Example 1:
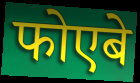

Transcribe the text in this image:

फोएबे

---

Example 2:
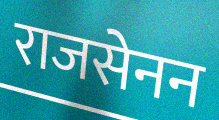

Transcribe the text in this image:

राजसेनन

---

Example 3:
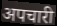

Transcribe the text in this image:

अपचारी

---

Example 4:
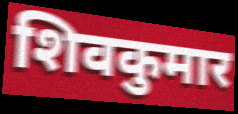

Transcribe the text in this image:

शिवकुमार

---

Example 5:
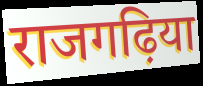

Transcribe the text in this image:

राजगढ़िया